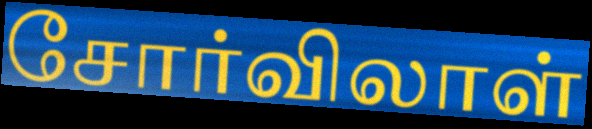
சோர்விலாள்